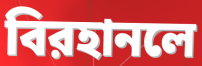
বিরহানলে